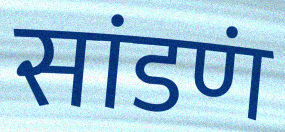
सांडणं